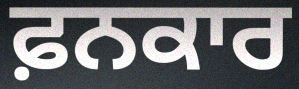
ਫ਼ਨਕਾਰ